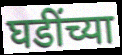
घडींच्या